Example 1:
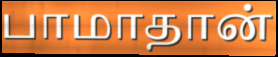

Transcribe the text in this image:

பாமாதான்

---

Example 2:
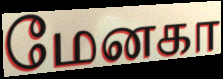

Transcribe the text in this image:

மேனகா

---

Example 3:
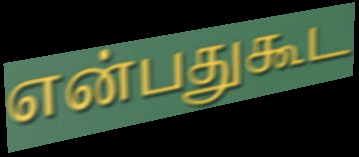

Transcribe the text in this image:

என்பதுகூட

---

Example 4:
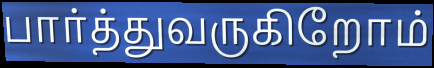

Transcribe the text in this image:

பார்த்துவருகிறோம்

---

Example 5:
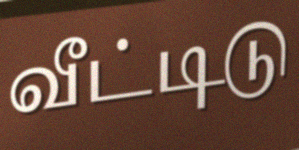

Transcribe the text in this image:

வீட்டிடு